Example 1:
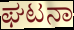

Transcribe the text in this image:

ಘಟನಾ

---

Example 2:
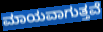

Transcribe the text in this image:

ಮಾಯವಾಗುತ್ತವೆ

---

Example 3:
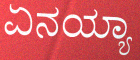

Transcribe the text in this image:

ಏನಯ್ಯಾ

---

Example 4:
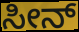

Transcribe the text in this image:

ಸೀನ್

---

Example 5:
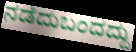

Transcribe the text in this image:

ನಡೆದುಬಂದದ್ದು